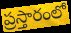
ప్రస్తారంలో